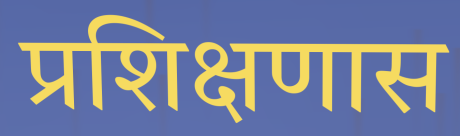
प्रशिक्षणास